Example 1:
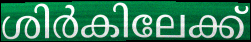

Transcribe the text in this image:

ശിർകിലേക്ക്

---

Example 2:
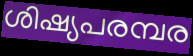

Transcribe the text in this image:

ശിഷ്യപരമ്പര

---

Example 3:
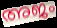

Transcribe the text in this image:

അജം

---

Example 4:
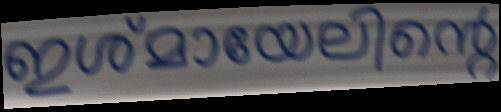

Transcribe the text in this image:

ഇശ്മായേലിന്റെ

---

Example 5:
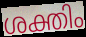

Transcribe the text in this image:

ശക്തിം